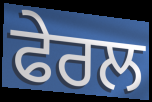
ਫੇਰਲ